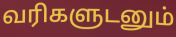
வரிகளுடனும்